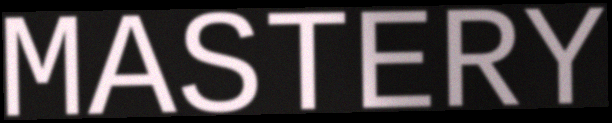
MASTERY